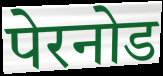
पेरनोड